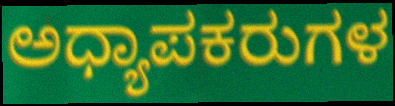
ಅಧ್ಯಾಪಕರುಗಳ